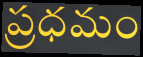
ప్రధమం